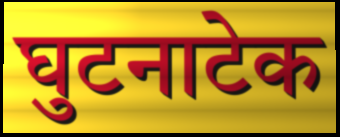
घुटनाटेक